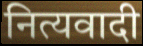
नित्यवादी